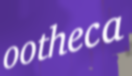
ootheca